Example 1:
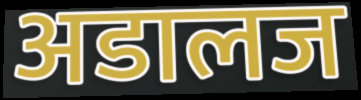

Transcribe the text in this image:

अडालज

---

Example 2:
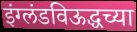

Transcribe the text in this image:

इंग्लंडविऊद्धच्या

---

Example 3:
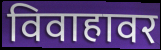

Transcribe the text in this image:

विवाहावर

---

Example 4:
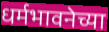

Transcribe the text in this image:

धर्मभावनेच्या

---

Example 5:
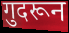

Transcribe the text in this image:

गुदरून